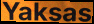
Yaksas